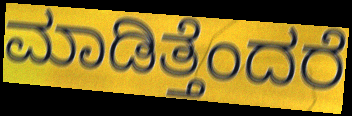
ಮಾಡಿತ್ತೆಂದರೆ